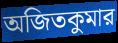
অজিতকুমার